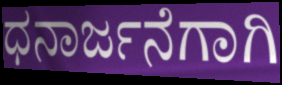
ಧನಾರ್ಜನೆಗಾಗಿ